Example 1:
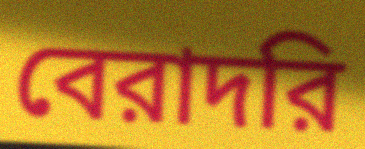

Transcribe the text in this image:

বেরাদরি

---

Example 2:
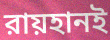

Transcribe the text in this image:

রায়হানই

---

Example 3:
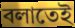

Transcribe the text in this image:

বলাতেই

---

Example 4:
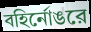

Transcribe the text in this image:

বহির্নোঙরে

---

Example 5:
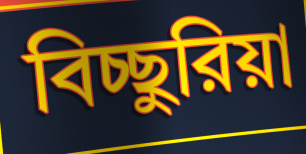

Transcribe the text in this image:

বিচ্ছুরিয়া